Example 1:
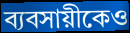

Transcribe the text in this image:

ব্যবসায়ীকেও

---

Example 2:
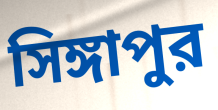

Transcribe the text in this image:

সিঙ্গাপুর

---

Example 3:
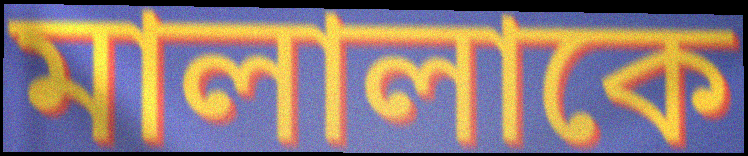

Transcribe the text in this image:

মালালাকে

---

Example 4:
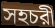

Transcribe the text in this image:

সহচরী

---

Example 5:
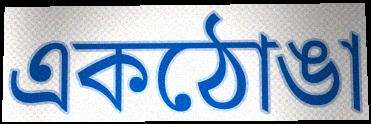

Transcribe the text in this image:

একঠোঙা